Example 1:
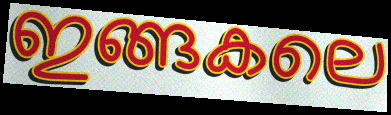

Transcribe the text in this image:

ഇങ്ങകലെ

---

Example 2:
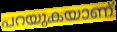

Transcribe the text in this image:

പറയുകയാണ്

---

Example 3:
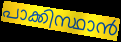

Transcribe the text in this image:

പാക്കിസ്ഥാൻ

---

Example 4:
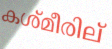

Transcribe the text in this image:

കശ്മീരില്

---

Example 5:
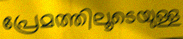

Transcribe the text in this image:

പ്രേമത്തിലൂടെയുള്ള